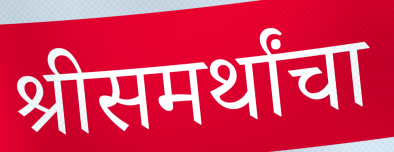
श्रीसमर्थांचा